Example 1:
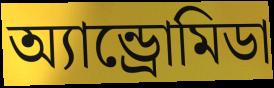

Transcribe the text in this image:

অ্যান্ড্রোমিডা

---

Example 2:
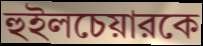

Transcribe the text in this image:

হুইলচেয়ারকে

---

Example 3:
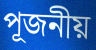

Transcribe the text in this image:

পূজনীয়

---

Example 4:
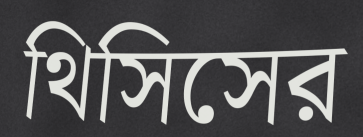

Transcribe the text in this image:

থিসিসের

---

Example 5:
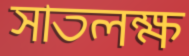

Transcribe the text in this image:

সাতলক্ষ